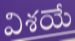
విశయే